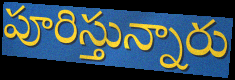
పూరిస్తున్నారు